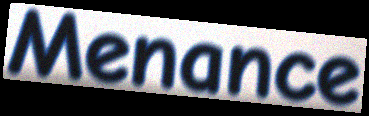
Menance